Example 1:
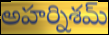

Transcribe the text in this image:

అహర్నిశమ్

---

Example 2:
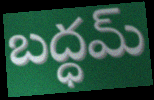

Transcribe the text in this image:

బద్ధమ్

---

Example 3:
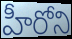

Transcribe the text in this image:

హీరోని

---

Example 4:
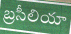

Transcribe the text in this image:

బ్రసీలియా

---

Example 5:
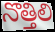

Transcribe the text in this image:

నొత్తిలి